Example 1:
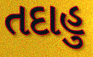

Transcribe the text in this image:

તદાહુ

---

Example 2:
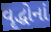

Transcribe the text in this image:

વૃદ્ધોનાં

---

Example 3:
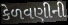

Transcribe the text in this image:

કેળવણીની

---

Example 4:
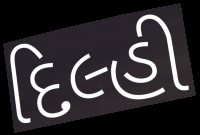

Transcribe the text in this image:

દિલ્હી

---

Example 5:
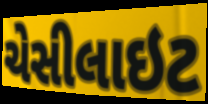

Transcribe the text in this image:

ચેસીલાઇટ